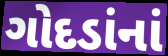
ગોદડાંનાં